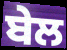
ਬੇਲ